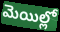
మెయిల్లో